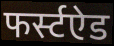
फर्स्टऐड